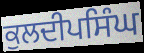
ਕੁਲਦੀਪਸਿੰਘ